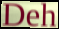
Deh